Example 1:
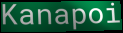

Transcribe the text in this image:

Kanapoi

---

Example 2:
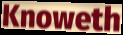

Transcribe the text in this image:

Knoweth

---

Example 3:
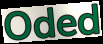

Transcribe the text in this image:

Oded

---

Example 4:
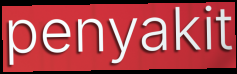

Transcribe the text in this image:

penyakit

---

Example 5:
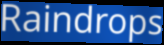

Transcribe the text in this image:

Raindrops